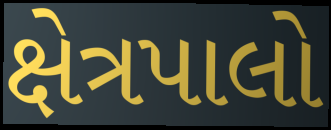
ક્ષેત્રપાલો